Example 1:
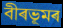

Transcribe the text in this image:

বীৰভূমৰ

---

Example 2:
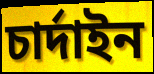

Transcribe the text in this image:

চাৰ্দাইন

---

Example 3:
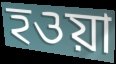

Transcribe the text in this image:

হওয়া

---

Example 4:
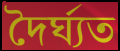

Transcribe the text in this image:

দৈৰ্ঘ্যত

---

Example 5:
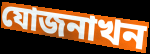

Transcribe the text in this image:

যোজনাখন